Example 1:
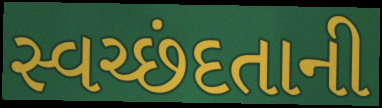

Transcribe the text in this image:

સ્વચ્છંદતાની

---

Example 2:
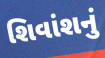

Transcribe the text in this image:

શિવાંશનું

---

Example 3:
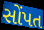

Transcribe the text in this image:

સોંપત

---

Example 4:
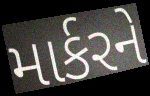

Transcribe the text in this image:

માર્કરને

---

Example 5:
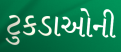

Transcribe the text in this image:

ટુકડાઓની